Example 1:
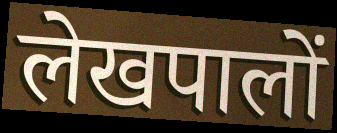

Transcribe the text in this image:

लेखपालों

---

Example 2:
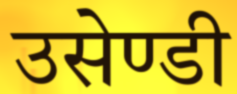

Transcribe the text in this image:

उसेण्डी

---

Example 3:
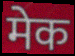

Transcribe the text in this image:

मेक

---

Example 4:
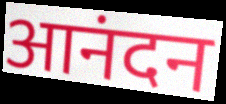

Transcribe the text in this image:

आनंदन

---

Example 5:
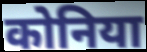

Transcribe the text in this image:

कोनिया